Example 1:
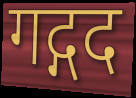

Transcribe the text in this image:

गद्गद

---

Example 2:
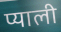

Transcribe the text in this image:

प्याली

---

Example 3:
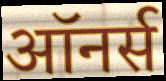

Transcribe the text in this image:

ऑनर्स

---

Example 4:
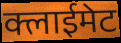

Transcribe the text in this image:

क्लाईमेट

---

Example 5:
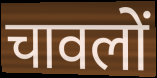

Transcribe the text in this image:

चावलों